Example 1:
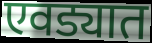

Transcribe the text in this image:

एवड्यात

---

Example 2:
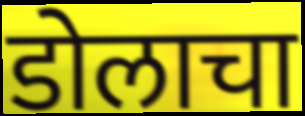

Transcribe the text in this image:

डोलाचा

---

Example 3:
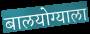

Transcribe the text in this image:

बालयोग्याला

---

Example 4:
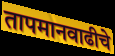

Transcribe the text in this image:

तापमानवाढीचे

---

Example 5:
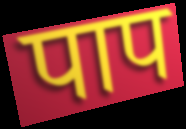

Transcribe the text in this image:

पाप